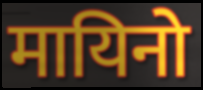
मायिनो